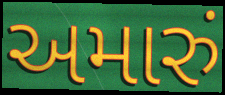
અમારું